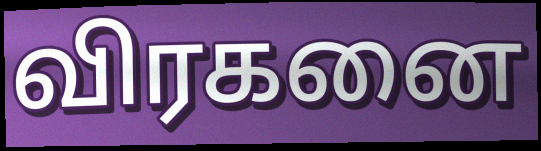
விரகனை